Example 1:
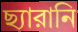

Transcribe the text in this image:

ছ্যারানি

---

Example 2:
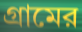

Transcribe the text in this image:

গ্রামের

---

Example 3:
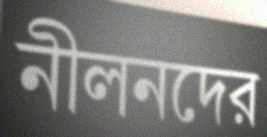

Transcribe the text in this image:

নীলনদের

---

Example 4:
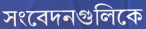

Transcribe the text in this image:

সংবেদনগুলিকে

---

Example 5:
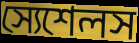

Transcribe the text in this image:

স্যেশেলস